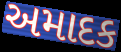
અમાદક